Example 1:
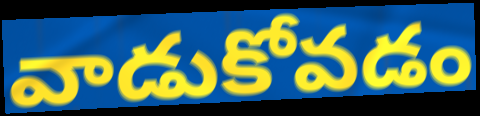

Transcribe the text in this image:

వాడుకోవడం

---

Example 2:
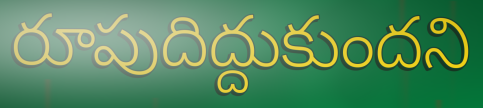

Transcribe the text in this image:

రూపుదిద్దుకుందని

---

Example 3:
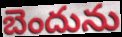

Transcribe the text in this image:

బెందును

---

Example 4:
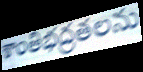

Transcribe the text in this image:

శాంతిభద్రతలను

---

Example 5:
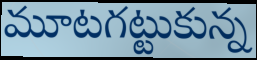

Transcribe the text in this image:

మూటగట్టుకున్న